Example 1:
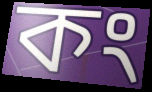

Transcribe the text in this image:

কং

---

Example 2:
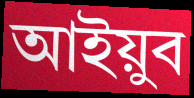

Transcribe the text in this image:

আইয়ুব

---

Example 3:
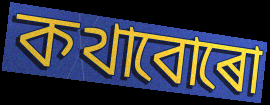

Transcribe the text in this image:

কথাবোৰো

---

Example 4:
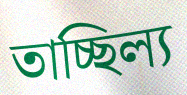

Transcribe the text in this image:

তাচ্ছিল্য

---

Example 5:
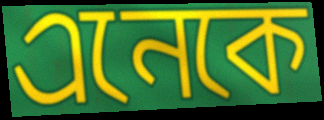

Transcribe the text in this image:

এনেকে